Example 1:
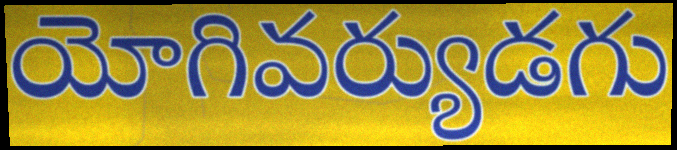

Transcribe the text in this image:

యోగివర్యుడగు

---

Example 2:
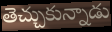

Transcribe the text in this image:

తెచ్చుకున్నాడు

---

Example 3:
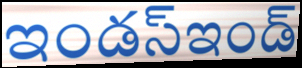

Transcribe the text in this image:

ఇండస్ఇండ్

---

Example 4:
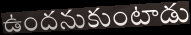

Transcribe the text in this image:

ఉందనుకుంటాడు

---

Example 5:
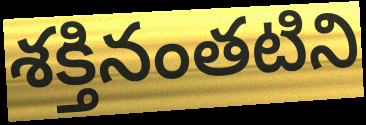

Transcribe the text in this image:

శక్తినంతటిని